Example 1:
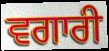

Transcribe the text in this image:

ਵਗਾਰੀ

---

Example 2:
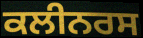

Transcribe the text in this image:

ਕਲੀਨਰਸ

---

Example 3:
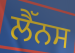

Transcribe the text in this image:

ਲੈੱਨਸ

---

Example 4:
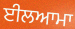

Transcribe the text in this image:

ਈਲਆਮਾ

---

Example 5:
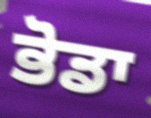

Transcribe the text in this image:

ਭੋਡਾ